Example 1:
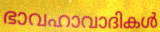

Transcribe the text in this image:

ഭാവഹാവാദികൾ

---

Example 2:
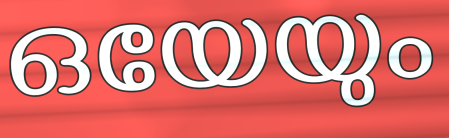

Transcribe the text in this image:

ഒയേയും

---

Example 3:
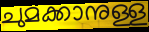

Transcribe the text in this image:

ചുമക്കാനുള്ള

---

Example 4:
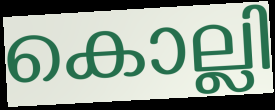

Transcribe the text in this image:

കൊല്ലി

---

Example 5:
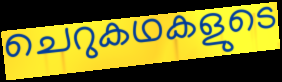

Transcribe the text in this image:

ചെറുകഥകളുടെ